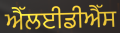
ਐੱਲਈਡੀਐੱਸ